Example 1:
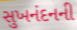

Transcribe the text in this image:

સુખનંદનની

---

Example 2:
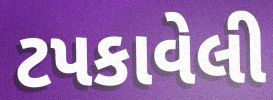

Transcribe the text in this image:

ટપકાવેલી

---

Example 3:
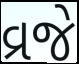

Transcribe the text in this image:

વ્રજે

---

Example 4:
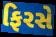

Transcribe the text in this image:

ફિરસે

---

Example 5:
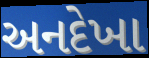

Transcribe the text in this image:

અનદેખા